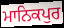
ਮਾਨਿਕਪੁਰ